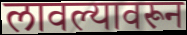
लावल्यावरून